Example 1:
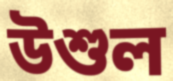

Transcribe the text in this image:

উশুল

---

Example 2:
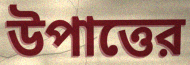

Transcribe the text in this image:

উপাত্তের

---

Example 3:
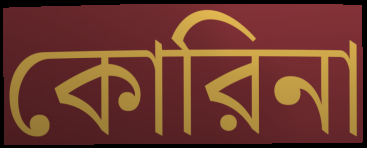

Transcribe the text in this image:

কোরিনা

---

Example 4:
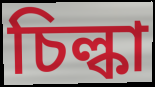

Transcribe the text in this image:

চিল্কা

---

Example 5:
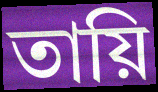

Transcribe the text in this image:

তায়ি